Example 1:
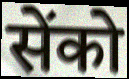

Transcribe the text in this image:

सेंको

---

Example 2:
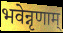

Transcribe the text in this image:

भवेन्नृणाम्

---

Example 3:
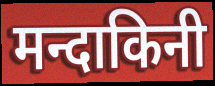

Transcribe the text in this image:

मन्दाकिनी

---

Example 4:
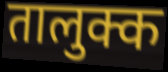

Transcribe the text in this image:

तालुक्क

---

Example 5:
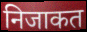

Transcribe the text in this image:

निजाकत